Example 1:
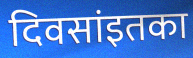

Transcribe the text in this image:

दिवसांइतका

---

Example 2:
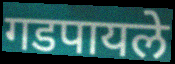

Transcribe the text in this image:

गडपायले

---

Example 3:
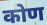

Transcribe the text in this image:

कोण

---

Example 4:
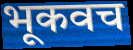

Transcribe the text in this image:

भूकवच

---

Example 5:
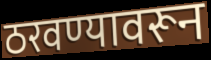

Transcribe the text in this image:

ठरवण्यावरून